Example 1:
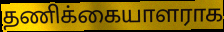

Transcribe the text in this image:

தணிக்கையாளராக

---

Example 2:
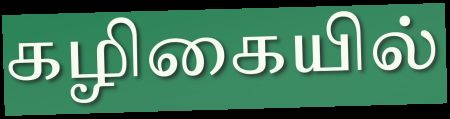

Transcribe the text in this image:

கழிகையில்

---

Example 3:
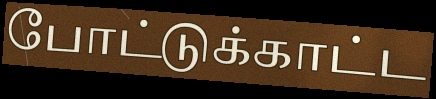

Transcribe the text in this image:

போட்டுக்காட்ட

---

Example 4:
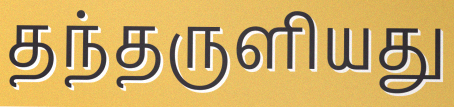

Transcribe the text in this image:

தந்தருளியது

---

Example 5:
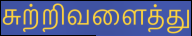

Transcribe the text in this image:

சுற்றிவளைத்து